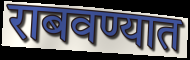
राबवण्यात